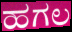
ಹಗಲ